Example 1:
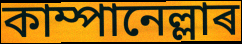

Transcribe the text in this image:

কাম্পানেল্লাৰ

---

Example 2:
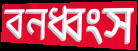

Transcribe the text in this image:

বনধ্বংস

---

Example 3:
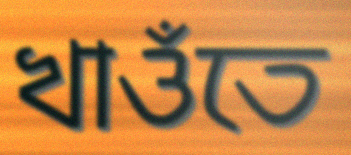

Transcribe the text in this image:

খাওঁতে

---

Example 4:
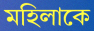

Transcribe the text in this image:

মহিলাকে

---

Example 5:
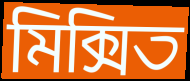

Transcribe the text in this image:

মিক্সিত